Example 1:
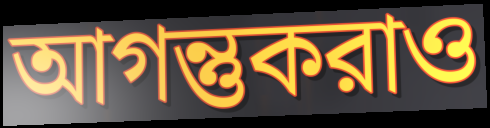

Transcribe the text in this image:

আগন্তুকরাও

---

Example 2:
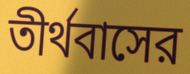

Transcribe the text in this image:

তীর্থবাসের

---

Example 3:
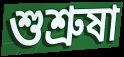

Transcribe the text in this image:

শুশ্রুষা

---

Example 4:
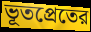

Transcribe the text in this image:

ভূতপ্রেতের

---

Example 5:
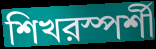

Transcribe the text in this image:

শিখরস্পর্শী